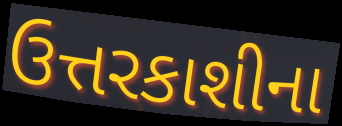
ઉત્તરકાશીના